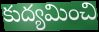
కుద్యమించి